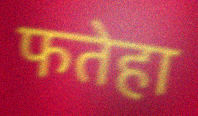
फतेहा